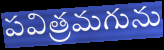
పవిత్రమగును